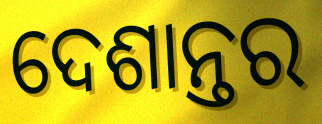
ଦେଶାନ୍ତର